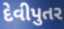
દેવીપુતર